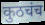
कुठचंच